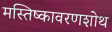
मस्तिष्कावरणशोथ